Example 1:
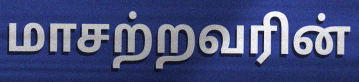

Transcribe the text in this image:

மாசற்றவரின்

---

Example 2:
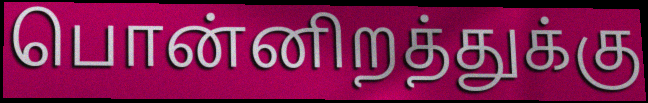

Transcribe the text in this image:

பொன்னிறத்துக்கு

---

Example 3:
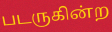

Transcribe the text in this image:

படருகின்ற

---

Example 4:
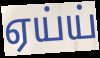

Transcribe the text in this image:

ஏய்ய்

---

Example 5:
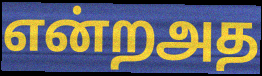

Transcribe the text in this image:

என்றஅத